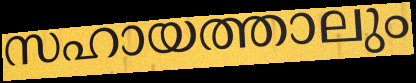
സഹായത്താലും